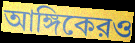
আঙ্গিকেরও